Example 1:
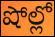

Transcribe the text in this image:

షోల్లో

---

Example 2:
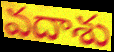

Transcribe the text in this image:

వదాశు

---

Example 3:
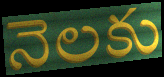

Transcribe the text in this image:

నెలకు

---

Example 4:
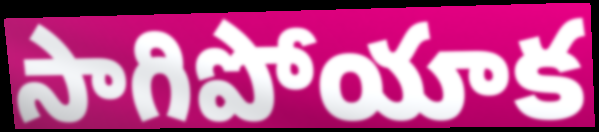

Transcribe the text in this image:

సాగిపోయాక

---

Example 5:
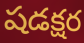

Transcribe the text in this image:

షడక్షర